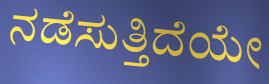
ನಡೆಸುತ್ತಿದೆಯೇ